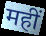
महीं